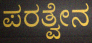
ಪರತ್ವೇನ